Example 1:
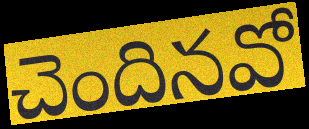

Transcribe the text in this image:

చెందినవో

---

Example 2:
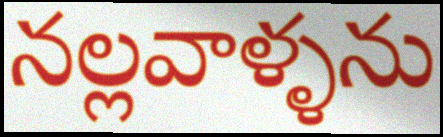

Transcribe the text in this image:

నల్లవాళ్ళను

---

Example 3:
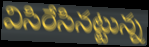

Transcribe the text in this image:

విసిరేసినట్టున్న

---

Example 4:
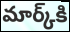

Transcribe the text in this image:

మార్క్‌కి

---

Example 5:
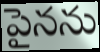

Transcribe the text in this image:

పైనను